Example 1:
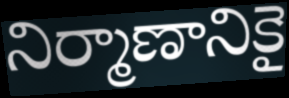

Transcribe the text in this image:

నిర్మాణానికై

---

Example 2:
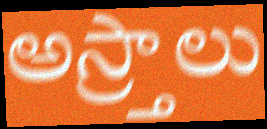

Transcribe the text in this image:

అస్ర్తాలు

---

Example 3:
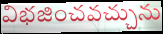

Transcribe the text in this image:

విభజించవచ్చును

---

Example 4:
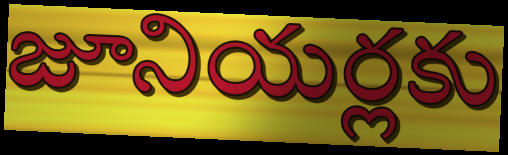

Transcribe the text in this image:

జూనియర్లకు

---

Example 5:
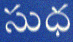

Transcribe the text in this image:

సుధ